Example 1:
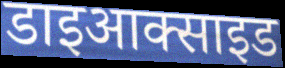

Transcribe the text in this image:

डाइआक्साइड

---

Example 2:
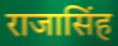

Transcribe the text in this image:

राजासिंह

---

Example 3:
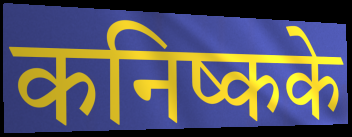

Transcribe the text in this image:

कनिष्कके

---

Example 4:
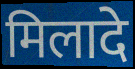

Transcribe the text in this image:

मिलादे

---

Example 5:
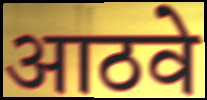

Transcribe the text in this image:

आठवे